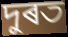
দুৰত